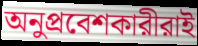
অনুপ্রবেশকারীরাই